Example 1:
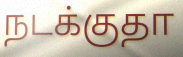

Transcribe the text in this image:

நடக்குதா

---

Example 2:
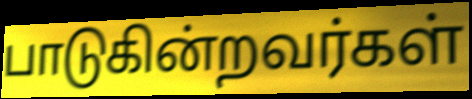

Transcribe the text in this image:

பாடுகின்றவர்கள்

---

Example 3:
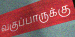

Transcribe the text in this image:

வகுப்பாருக்கு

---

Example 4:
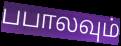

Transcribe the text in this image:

பபாலவும்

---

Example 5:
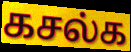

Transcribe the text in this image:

கசல்க